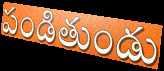
పండితుండు